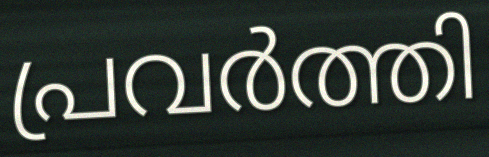
പ്രവർത്തി